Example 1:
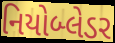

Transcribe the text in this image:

નિયોબ્લેડર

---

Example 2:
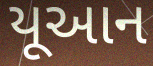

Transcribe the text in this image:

યૂઆન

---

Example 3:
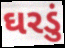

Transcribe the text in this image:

ઘરડું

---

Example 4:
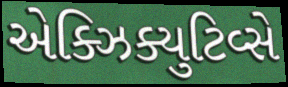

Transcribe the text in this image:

એક્ઝિક્યુટિવ્સે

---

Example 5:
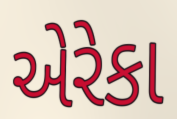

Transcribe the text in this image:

એરેકા